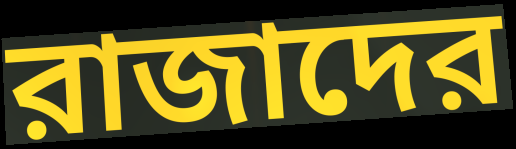
রাজাদের